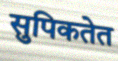
सुपिकतेत